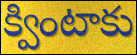
క్వింటాకు